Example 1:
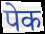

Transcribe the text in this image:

पेक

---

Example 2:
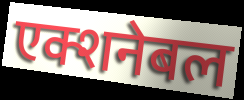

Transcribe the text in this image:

एक्शनेबल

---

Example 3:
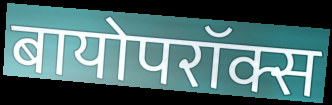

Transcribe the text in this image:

बायोपरॉक्स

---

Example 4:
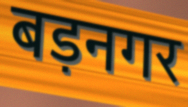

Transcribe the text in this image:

बड़नगर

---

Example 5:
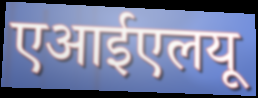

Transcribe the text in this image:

एआईएलयू